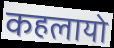
कहलायो